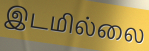
இடமில்லை